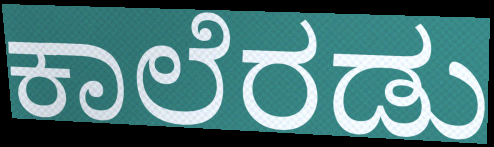
ಕಾಲೆರಡು